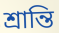
শ্রান্তি